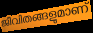
ജീവിതങ്ങളുമാണ്